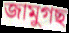
জামুগছ